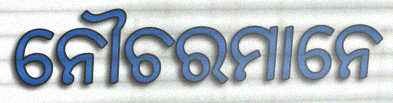
ନୌଚରମାନେ